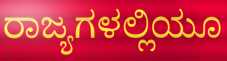
ರಾಜ್ಯಗಳಲ್ಲಿಯೂ